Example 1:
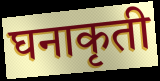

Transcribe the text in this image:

घनाकृती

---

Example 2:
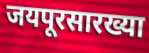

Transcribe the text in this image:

जयपूरसारख्या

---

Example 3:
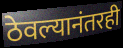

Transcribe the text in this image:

ठेवल्यानंतरही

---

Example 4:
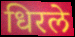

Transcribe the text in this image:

धिरले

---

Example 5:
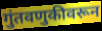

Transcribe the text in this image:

गुंतवणुकीवरून